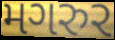
મગરુર